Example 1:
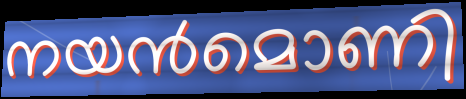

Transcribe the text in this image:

നയൻമൊണി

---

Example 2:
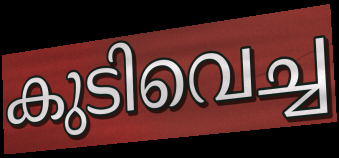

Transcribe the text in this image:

കുടിവെച്ച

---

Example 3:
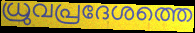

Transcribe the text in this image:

ധ്രുവപ്രദേശത്തെ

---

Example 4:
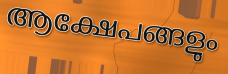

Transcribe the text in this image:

ആക്ഷേപങ്ങളും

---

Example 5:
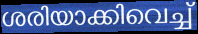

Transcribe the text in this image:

ശരിയാക്കിവെച്ച്